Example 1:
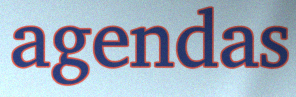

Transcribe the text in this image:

agendas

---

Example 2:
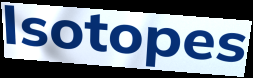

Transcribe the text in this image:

Isotopes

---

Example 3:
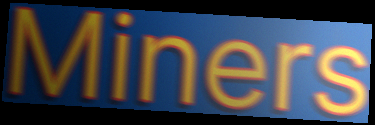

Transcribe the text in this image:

Miners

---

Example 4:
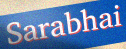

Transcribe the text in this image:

Sarabhai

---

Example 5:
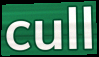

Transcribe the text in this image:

cull